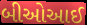
બીઓઆઈ